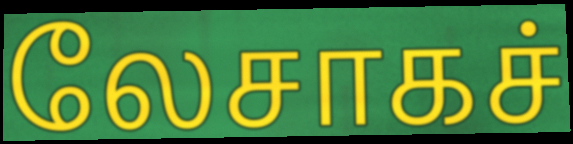
லேசாகச்